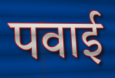
पवाई